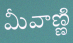
మీవాణ్ణి